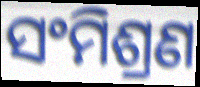
ସଂମିଶ୍ରଣ